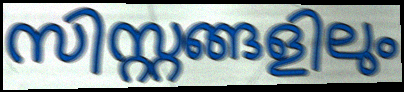
സിസ്റ്റങ്ങളിലും